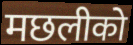
मछलीको